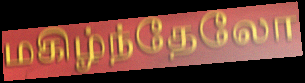
மகிழ்ந்தேலோ